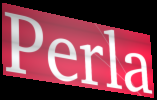
Perla